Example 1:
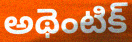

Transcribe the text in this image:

అథెంటిక్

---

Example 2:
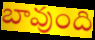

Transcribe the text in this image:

బావుంది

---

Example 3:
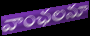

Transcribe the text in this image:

వాంఛలనూ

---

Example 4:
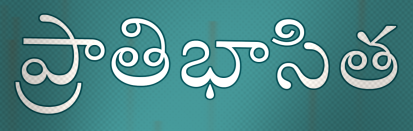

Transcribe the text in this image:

ప్రాతిభాసిత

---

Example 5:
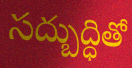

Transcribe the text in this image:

సద్బుద్ధితో